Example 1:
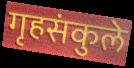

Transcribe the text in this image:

गृहसंकुले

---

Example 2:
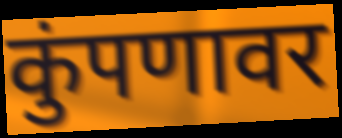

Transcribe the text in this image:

कुंपणावर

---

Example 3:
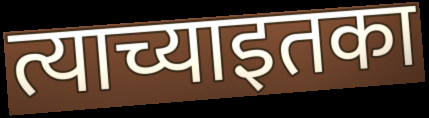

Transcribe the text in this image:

त्याच्याइतका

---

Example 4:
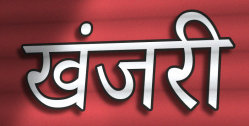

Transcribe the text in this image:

खंजरी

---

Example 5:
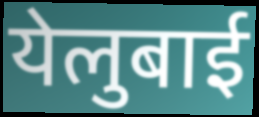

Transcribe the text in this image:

येलुबाई